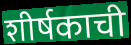
शीर्षकाची